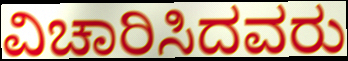
ವಿಚಾರಿಸಿದವರು